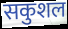
सकुशल